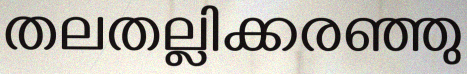
തലതല്ലിക്കരഞ്ഞു